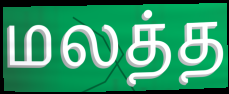
மலத்த